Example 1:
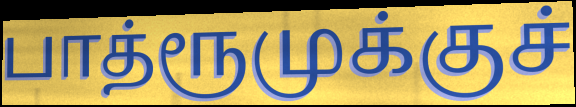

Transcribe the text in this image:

பாத்ரூமுக்குச்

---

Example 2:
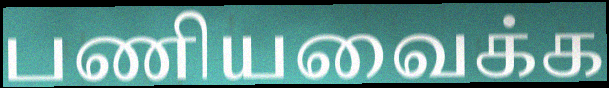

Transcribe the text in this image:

பணியவைக்க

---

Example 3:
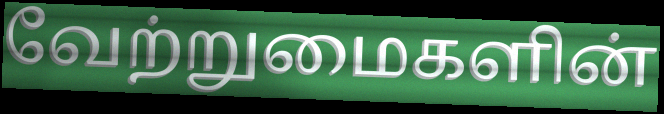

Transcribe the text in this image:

வேற்றுமைகளின்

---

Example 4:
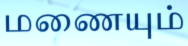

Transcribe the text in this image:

மணையும்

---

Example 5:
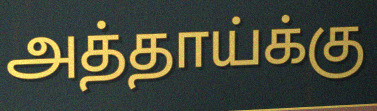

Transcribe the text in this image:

அத்தாய்க்கு